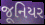
જૂનિયર